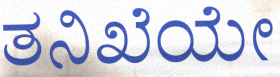
ತನಿಖೆಯೇ